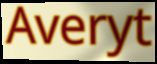
Averyt